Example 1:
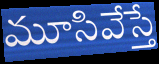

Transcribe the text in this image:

మూసివేస్తే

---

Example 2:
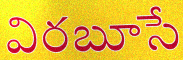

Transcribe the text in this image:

విరబూసే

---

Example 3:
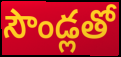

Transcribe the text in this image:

సౌండ్లతో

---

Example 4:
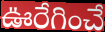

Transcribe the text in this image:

ఊరేగించే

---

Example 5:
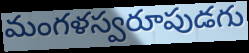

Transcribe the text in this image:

మంగళస్వరూపుడగు